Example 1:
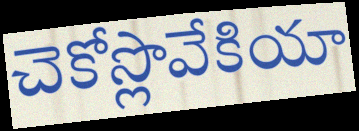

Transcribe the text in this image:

చెకోస్లొవేకియా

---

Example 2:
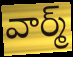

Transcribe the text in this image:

వార్మ్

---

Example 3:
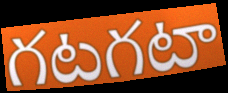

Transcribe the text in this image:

గటగటా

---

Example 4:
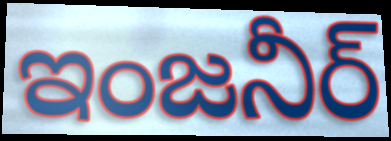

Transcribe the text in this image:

ఇంజనీర్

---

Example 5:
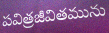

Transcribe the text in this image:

పవిత్రజీవితమును